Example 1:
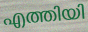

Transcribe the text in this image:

എത്തിയി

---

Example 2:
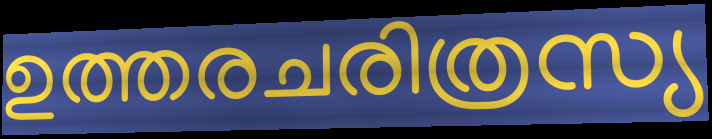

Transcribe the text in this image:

ഉത്തരചരിത്രസ്യ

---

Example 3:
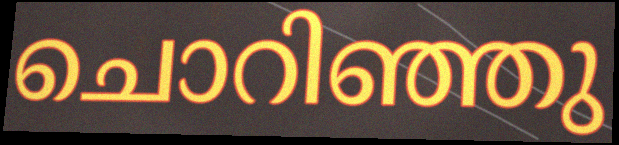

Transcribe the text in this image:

ചൊറിഞ്ഞു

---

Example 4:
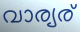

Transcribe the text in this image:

വാര്യര്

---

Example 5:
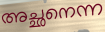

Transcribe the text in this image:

അച്ഛനെന്ന